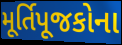
મૂર્તિપૂજકોના